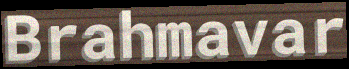
Brahmavar